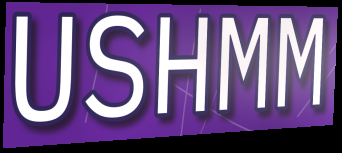
USHMM